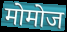
मोमोज